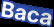
Baca